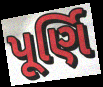
પૂર્ણિ